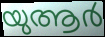
യുആർ